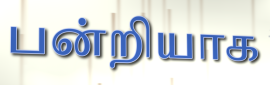
பன்றியாக